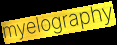
myelography